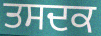
ਤਸਦਕ